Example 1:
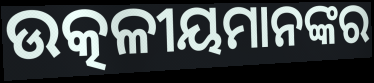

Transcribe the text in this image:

ଉତ୍କଳୀୟମାନଙ୍କର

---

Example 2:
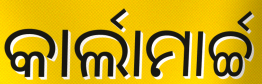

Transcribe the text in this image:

କାର୍ଲାମାର୍ଚ୍ଚ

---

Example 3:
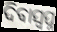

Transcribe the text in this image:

ଦିବାସ୍ଵପ୍ନ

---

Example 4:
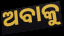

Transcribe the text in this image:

ଅବାକୁ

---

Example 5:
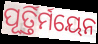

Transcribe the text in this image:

ପୂର୍ତ୍ତିର୍ମୟେନ